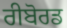
ਰੀਬੋਰਡ